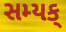
સમ્યક્